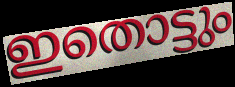
ഇതൊട്ടും